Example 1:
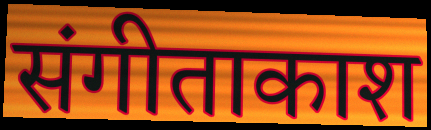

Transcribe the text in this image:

संगीताकाश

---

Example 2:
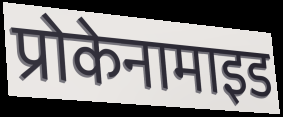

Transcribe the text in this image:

प्रोकेनामाइड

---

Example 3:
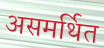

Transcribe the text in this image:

असमर्थित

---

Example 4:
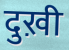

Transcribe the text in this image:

दुख़ी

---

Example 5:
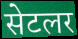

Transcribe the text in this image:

सेटलर